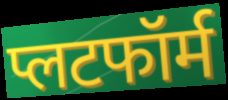
प्लटफॉर्म